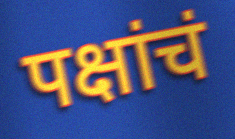
पक्षांचं